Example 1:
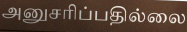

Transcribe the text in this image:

அனுசரிப்பதில்லை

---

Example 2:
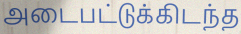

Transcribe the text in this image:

அடைபட்டுக்கிடந்த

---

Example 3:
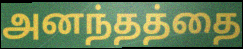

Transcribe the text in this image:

அனந்தத்தை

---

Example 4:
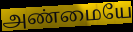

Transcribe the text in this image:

அண்மையே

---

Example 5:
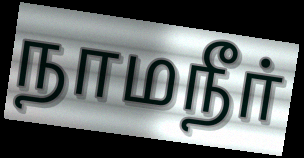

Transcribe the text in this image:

நாமநீர்